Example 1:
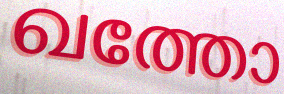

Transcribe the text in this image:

ഖത്തോ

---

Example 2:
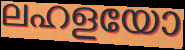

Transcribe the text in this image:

ലഹളയോ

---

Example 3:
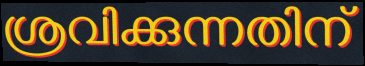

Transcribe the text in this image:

ശ്രവിക്കുന്നതിന്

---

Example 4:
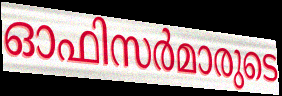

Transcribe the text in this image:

ഓഫിസർമാരുടെ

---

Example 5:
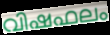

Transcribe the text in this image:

വിഷഫലം